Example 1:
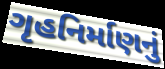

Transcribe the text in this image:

ગૃહનિર્માણનું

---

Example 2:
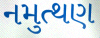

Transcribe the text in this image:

નમુત્થણ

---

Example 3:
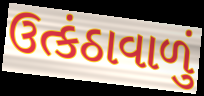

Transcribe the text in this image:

ઉત્કંઠાવાળું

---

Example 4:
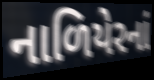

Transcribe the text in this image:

નાળિયેરનાં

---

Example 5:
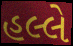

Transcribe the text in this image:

હલ્લે